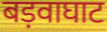
बड़वाघाट